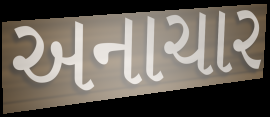
અનાચાર